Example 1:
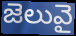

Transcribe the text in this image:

జెలువై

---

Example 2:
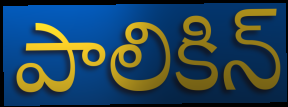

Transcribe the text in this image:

పాలికిన్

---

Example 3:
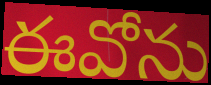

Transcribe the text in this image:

ఈవోను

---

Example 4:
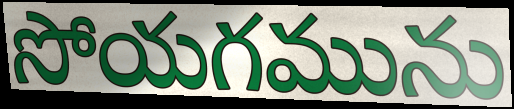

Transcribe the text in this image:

సోయగమును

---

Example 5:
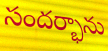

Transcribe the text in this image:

సందర్భాను